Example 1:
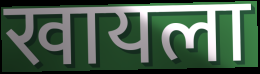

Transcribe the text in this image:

खायला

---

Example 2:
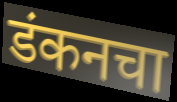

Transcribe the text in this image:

डंकनचा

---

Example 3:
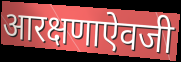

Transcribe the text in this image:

आरक्षणाऐवजी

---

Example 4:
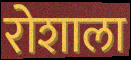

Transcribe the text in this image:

रोशाला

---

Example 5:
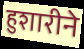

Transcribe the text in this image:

हुशारीने